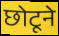
छोटूने